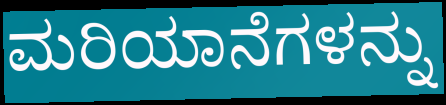
ಮರಿಯಾನೆಗಳನ್ನು